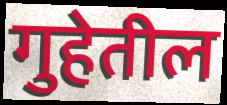
गुहेतील